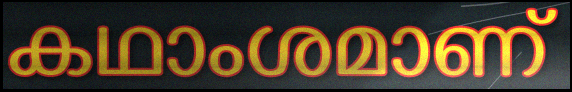
കഥാംശമാണ്